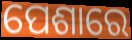
ପେଶାରେ